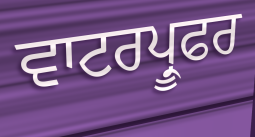
ਵਾਟਰਪ੍ਰੂਫਰ